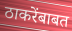
ठाकरेंबाबत